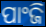
ପାଂଜି